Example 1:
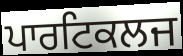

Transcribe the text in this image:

ਪਾਰਟਿਕਲਜ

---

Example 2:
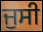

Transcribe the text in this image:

ਜੁਸੀ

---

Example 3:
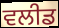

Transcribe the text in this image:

ਵਲੀਡ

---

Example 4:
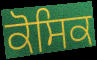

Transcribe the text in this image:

ਕੋਸਿਕ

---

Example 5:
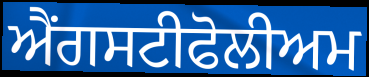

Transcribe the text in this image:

ਐਂਗਸਟੀਫੋਲੀਅਮ